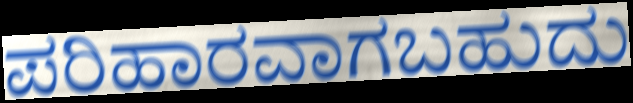
ಪರಿಹಾರವಾಗಬಹುದು